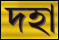
দহা